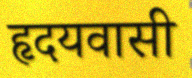
हृदयवासी